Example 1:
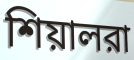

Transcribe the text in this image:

শিয়ালরা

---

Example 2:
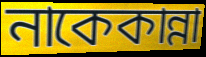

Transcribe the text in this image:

নাকেকান্না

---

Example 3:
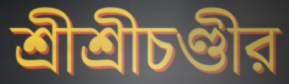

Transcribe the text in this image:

শ্রীশ্রীচণ্ডীর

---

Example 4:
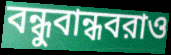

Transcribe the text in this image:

বন্ধুবান্ধবরাও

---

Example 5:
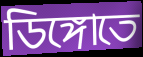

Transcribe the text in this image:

ডিঙ্গোতে